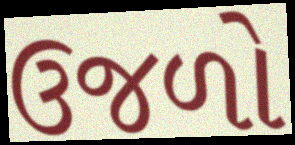
ઉજળો